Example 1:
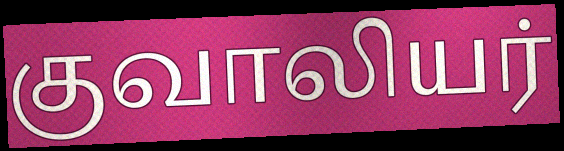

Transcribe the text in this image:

குவாலியர்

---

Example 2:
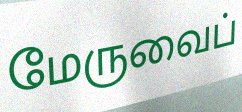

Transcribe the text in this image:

மேருவைப்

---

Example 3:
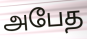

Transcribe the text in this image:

அபேத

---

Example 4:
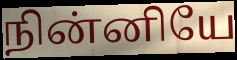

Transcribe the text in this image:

நின்னியே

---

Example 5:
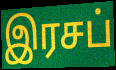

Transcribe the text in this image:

இரசப்